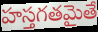
హస్తగతమైతే